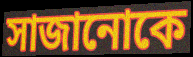
সাজানোকে